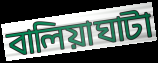
বালিয়াঘাটা